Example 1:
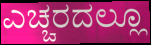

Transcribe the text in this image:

ಎಚ್ಚರದಲ್ಲೂ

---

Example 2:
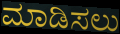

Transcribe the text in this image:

ಮಾಡಿಸಲು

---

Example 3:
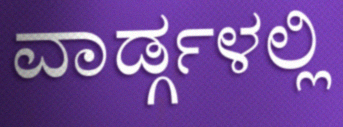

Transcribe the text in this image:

ವಾರ್ಡ್ಗಳಲ್ಲಿ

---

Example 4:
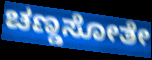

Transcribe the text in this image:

ಚಣ್ಡಸೋತೇ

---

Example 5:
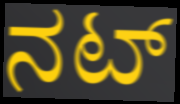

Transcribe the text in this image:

ನಟ್